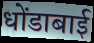
धोंडाबाई